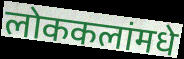
लोककलांमधे